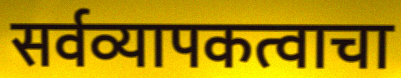
सर्वव्यापकत्वाचा